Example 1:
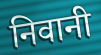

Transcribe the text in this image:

निवानी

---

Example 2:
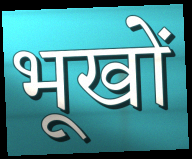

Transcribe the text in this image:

भूखों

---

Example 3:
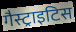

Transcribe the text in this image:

गैस्ट्राइटिस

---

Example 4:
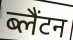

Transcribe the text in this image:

ब्लैंटन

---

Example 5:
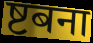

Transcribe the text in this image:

ष्टबना